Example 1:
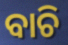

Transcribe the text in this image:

ବାଚି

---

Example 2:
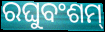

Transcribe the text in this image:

ରଘୁବଂଶମ୍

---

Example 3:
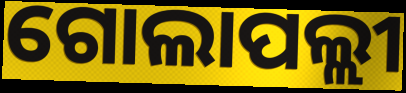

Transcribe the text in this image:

ଗୋଲାପଲ୍ଲୀ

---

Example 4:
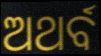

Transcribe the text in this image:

ଅଥର୍ବ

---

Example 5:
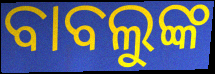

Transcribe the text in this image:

ବାବଲୁଙ୍କ